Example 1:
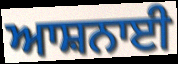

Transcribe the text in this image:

ਆਸ਼ਨਾਈ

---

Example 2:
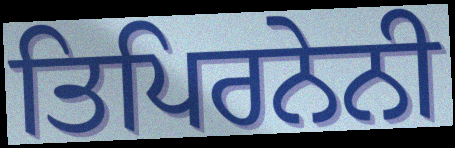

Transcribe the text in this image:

ਤਿਪਿਰਨੇਨੀ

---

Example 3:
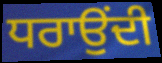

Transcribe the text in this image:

ਧਰਾਉਂਦੀ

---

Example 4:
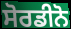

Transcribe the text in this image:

ਸੋਰਡੀਨੋ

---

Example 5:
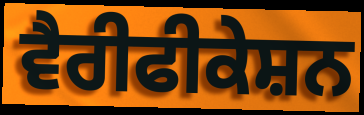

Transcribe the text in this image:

ਵੈਰੀਫੀਕੇਸ਼ਨ